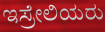
ಇಸ್ರೇಲಿಯರು